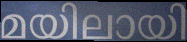
മയിലായി